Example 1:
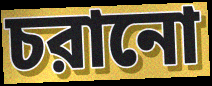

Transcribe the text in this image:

চরানো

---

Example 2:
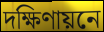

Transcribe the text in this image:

দক্ষিণায়নে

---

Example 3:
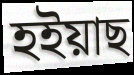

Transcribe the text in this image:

হইয়াছ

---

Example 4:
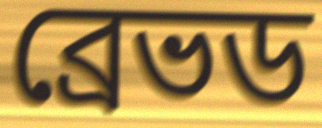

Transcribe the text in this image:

ব্রেভড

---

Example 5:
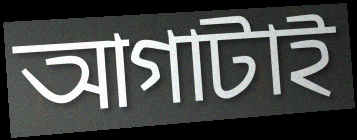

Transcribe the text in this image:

আগাটাই